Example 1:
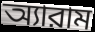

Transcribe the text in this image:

অ্যারাম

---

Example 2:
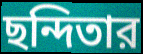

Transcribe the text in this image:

ছন্দিতার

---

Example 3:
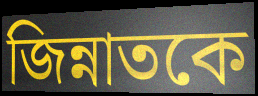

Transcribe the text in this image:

জিন্নাতকে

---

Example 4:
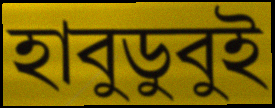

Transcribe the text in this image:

হাবুডুবুই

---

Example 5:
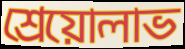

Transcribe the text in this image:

শ্রেয়োলাভ